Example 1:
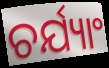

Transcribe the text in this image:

ଚର୍ଯ୍ୟାଂ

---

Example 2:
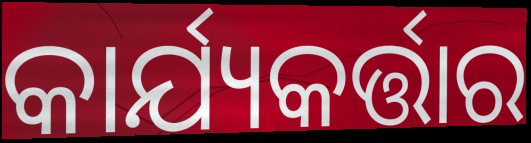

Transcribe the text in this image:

କାର୍ଯ୍ୟକର୍ତ୍ତାର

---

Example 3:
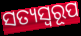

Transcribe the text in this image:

ସତ୍ୟସ୍ୱରୂପ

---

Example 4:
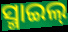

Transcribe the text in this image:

ସ୍ମାଇଲ୍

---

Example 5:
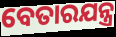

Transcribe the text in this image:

ବେତାରଯନ୍ତ୍ର